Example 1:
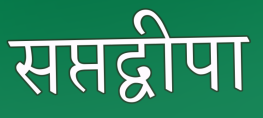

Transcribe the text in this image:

सप्तद्वीपा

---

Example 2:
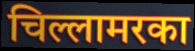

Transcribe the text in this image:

चिल्लामरका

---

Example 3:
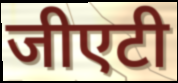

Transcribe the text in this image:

जीएटी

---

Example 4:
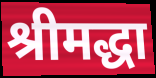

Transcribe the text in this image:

श्रीमद्धा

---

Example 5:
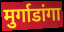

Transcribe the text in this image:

मुर्गाडांगा